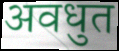
अवधुत